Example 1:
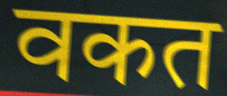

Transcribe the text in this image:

वकत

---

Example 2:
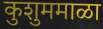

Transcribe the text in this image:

कुशुममाळा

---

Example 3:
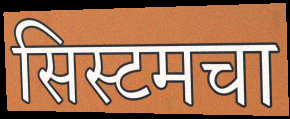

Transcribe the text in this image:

सिस्टमचा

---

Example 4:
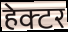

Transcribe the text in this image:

हेक्‍टर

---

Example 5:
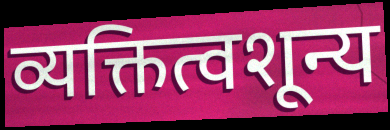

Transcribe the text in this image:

व्यक्तित्वशून्य